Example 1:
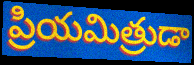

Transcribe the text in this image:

ప్రియమిత్రుడా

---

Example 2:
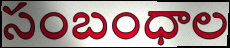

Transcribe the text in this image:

సంబంధాల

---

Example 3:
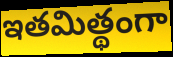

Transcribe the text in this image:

ఇతమిత్థంగా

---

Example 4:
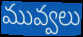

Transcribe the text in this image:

మువ్వలు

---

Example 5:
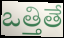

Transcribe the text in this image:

ఒత్తితే